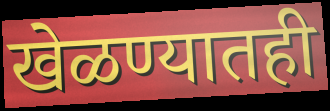
खेळण्यातही